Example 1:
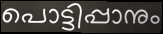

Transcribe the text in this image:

പൊട്ടിപ്പാനും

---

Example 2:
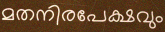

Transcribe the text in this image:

മതനിരപേക്ഷവും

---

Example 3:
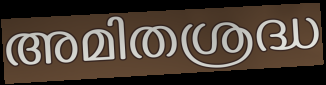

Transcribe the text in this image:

അമിതശ്രദ്ധ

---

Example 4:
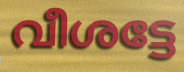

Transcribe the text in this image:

വീശട്ടേ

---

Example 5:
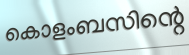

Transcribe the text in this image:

കൊളംബസിന്റെ